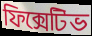
ফিক্সেটিভ